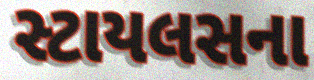
સ્ટાયલસના